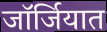
जॉर्जियात